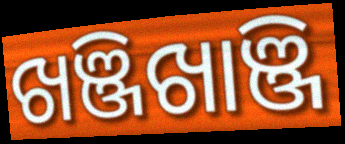
ଖଞ୍ଜିଖାଞ୍ଜି